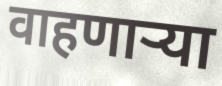
वाहणाऱ्या